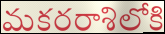
మకరరాశిలోకి